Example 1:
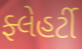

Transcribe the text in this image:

ફ્લેહર્ટી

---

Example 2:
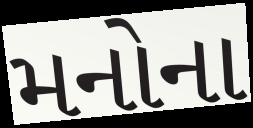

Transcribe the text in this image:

મનોના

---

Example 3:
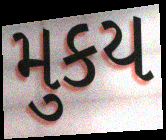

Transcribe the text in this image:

મુકય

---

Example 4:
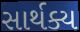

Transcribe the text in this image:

સાર્થક્ય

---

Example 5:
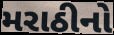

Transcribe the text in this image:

મરાઠીનો